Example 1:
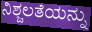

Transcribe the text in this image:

ನಿಶ್ಚಲತೆಯನ್ನು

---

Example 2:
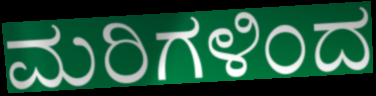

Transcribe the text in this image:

ಮರಿಗಳಿಂದ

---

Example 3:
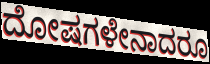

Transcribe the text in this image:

ದೋಷಗಳೇನಾದರೂ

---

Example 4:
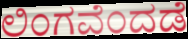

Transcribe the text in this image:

ಲಿಂಗವೆಂದಡೆ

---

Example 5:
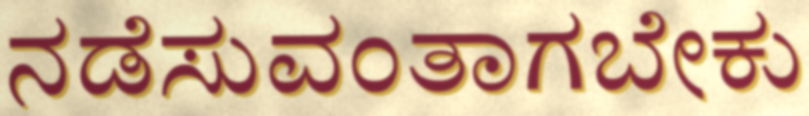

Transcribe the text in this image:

ನಡೆಸುವಂತಾಗಬೇಕು